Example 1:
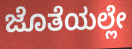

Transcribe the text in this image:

ಜೊತೆಯಲ್ಲೇ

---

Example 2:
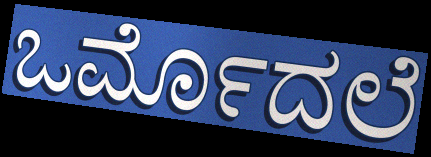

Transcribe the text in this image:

ಒರ್ಮೊದಲೆ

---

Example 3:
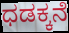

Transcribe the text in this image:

ಧಡಕ್ಕನೆ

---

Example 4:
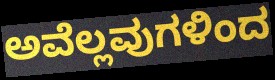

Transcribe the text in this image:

ಅವೆಲ್ಲವುಗಳಿಂದ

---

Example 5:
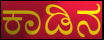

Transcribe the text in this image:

ಕಾಡಿನ